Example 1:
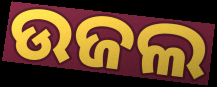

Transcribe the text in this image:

ଉଜଲ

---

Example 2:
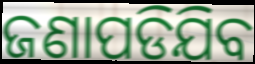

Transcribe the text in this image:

ଜଣାପଡିଯିବ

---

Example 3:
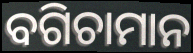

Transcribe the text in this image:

ବଗିଚାମାନ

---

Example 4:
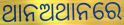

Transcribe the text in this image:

ଥାନଅଥାନରେ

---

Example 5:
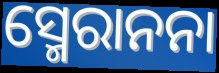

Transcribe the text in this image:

ସ୍ମେରାନନା